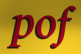
pof